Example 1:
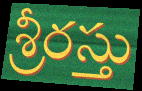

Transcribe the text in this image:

శ్రీరస్తు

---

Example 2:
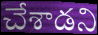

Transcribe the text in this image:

చేశాడని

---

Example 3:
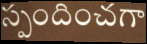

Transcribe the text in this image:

స్పందించగా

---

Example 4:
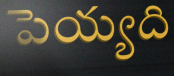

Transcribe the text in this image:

పెయ్యది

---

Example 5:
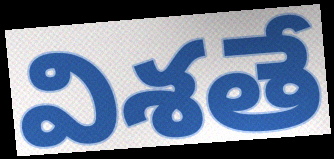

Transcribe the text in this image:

విశతే